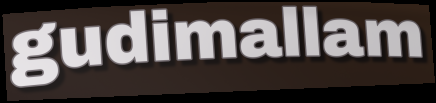
gudimallam